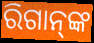
ରିଗାନ୍‌ଙ୍କ